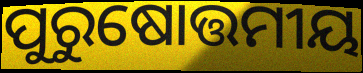
ପୁରୁଷୋତ୍ତମୀୟ